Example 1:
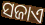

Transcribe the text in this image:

ସଜାଏ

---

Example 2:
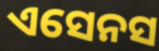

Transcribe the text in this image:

ଏସେନସ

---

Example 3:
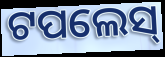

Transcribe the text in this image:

ଟପଲେସ୍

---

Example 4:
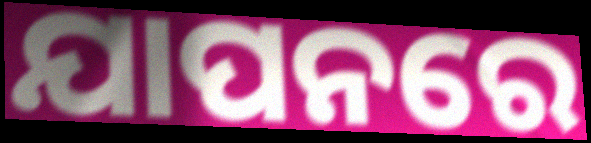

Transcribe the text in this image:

ଯାପନରେ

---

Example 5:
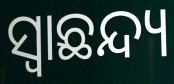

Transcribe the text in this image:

ସ୍ୱାଛନ୍ଦ୍ୟ